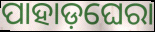
ପାହାଡ଼ଘେରା